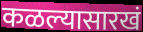
कळल्यासारखं